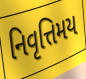
નિવૃત્તિમય